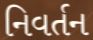
નિવર્તન